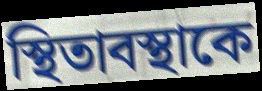
স্থিতাবস্থাকে